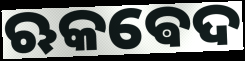
ଋକଵେଦ